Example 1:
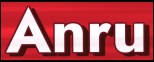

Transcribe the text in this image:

Anru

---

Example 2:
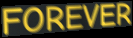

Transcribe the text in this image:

FOREVER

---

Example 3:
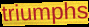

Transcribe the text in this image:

triumphs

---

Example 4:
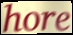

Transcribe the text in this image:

hore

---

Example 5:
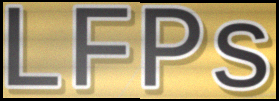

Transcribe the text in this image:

LFPs